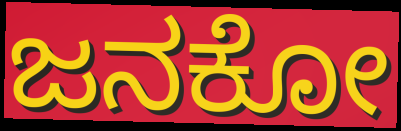
ಜನಕೋ